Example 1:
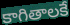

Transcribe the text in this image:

కాగితాలకే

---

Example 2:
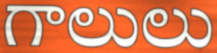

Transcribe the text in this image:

గాలులు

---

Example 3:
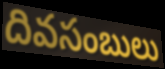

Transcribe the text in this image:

దివసంబులు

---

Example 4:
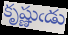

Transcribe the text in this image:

కృష్ణుఁడు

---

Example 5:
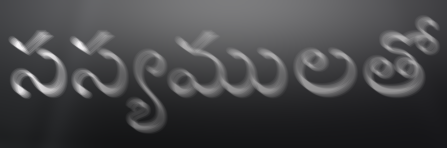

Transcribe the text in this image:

సస్యములతో